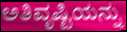
ಅತಿವೃಷ್ಟಿಯನ್ನು